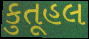
કુતૂહલ